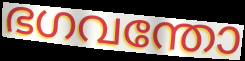
ഭഗവന്തോ